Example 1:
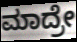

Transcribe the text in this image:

ಮಾದ್ರೇ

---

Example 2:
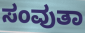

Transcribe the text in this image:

ಸಂವುತಾ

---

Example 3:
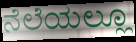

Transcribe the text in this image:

ನೆಲೆಯಲ್ಲೂ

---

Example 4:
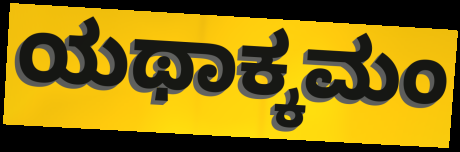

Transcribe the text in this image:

ಯಥಾಕ್ಕಮಂ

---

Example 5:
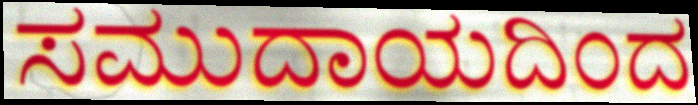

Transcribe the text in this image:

ಸಮುದಾಯದಿಂದ